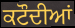
ਕਟੌਦੀਆਂ